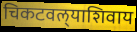
चिकटवल्याशिवाय